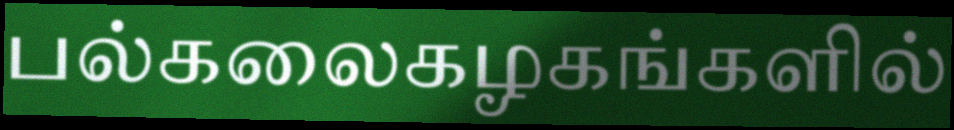
பல்கலைகழகங்களில்